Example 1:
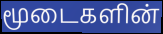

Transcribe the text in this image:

மூடைகளின்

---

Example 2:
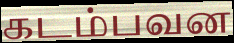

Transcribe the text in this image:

கடம்பவன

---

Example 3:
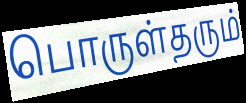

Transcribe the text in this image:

பொருள்தரும்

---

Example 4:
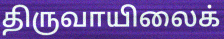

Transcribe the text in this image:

திருவாயிலைக்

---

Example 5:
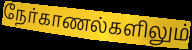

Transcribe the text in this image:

நேர்காணல்களிலும்